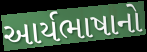
આર્યભાષાનો